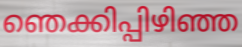
ഞെക്കിപ്പിഴിഞ്ഞ